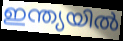
ഇന്ത്യയിൽ